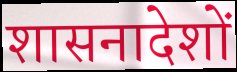
शासनादेशों